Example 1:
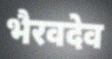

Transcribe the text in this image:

भैरवदेव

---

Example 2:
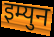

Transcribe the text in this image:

इम्‍युन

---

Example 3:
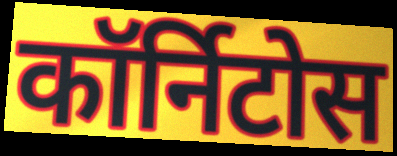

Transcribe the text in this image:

कॉर्निटोस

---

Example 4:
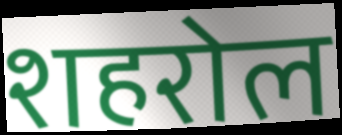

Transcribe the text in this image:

शहरोल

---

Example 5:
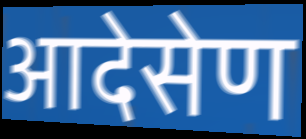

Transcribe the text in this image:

आदेसेण